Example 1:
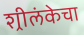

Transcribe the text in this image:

श्रीलंकेचा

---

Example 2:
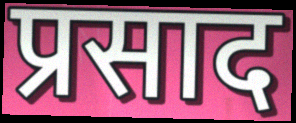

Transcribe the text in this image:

प्रसाद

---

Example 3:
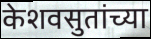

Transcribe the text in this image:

केशवसुतांच्या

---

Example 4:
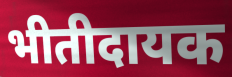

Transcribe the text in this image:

भीतीदायक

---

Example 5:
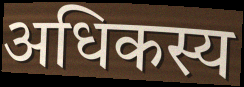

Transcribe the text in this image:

अधिकस्य